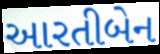
આરતીબેન